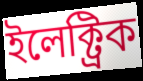
ইলেক্ট্ৰিক